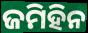
ଜମିହିନ